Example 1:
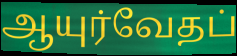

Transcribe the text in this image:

ஆயுர்வேதப்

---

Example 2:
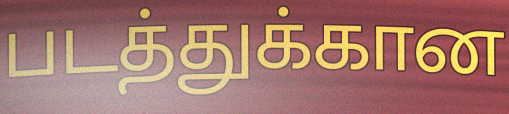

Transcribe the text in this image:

படத்துக்கான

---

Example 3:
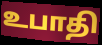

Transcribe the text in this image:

உபாதி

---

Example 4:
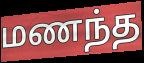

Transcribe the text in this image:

மணந்த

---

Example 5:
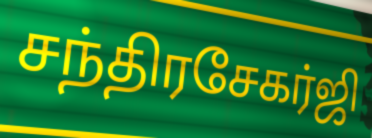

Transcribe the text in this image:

சந்திரசேகர்ஜி